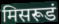
मिसरूडं